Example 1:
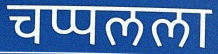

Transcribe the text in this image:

चप्पलला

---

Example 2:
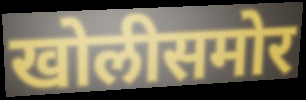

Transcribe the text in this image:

खोलीसमोर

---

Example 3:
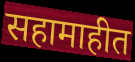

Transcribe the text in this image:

सहामाहीत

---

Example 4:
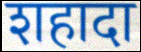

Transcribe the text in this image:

शहादा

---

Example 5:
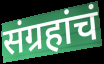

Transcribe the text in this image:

संग्रहांचं